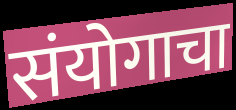
संयोगाचा